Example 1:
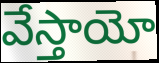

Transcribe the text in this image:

వేస్తాయో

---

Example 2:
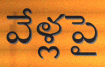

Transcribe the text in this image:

వేళ్లపై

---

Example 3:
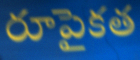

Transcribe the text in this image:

రూపైకత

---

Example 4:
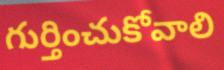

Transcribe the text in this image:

గుర్తించుకోవాలి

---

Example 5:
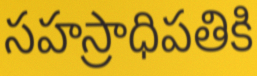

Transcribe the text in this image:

సహస్రాధిపతికి